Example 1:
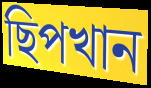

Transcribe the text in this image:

ছিপখান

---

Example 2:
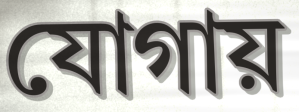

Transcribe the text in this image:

যোগায়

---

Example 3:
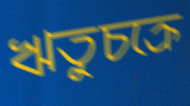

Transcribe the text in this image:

ঋতুচক্রে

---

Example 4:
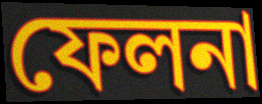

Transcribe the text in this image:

ফেলনা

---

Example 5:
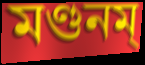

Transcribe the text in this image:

মণ্ডনম্